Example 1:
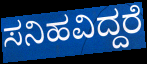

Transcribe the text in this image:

ಸನಿಹವಿದ್ದರೆ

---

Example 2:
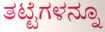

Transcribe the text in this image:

ತಟ್ಟೆಗಳನ್ನೂ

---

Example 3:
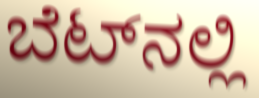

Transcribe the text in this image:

ಬೆಟ್‌ನಲ್ಲಿ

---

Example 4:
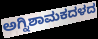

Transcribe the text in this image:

ಅಗ್ನಿಶಾಮಕದಳದ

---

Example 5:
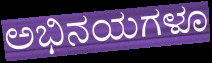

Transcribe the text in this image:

ಅಭಿನಯಗಳೂ